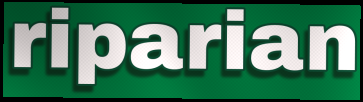
riparian